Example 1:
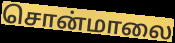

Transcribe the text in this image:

சொன்மாலை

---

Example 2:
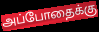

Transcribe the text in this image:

அப்போதைக்கு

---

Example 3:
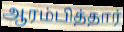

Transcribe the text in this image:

ஆரம்பித்தார்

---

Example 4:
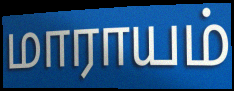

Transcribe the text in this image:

மாராயம்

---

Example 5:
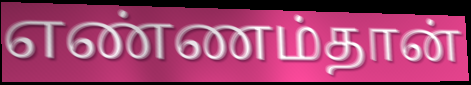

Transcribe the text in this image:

எண்ணம்தான்